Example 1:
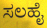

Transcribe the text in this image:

ಸಲಹೈ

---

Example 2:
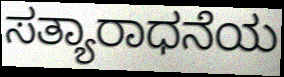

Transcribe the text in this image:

ಸತ್ಯಾರಾಧನೆಯ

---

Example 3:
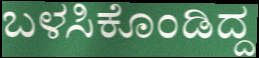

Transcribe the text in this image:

ಬಳಸಿಕೊಂಡಿದ್ದ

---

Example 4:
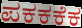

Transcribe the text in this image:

ಪಕಕಕೆಕ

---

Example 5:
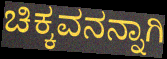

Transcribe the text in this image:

ಚಿಕ್ಕವನನ್ನಾಗಿ